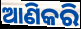
ଆଣିକରି